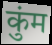
कुंम